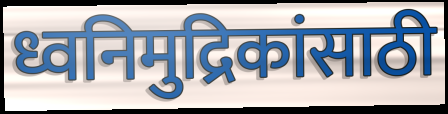
ध्वनिमुद्रिकांसाठी